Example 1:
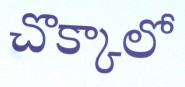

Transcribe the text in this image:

చొక్కాలో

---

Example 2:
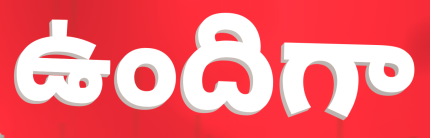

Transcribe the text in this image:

ఉందిగా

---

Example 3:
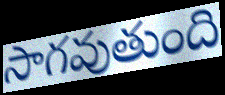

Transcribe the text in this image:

సాగవుతుంది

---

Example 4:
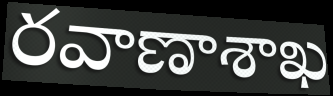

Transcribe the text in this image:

రవాణాశాఖ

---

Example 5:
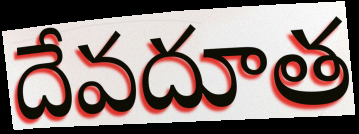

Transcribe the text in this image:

దేవదూత